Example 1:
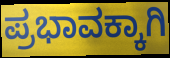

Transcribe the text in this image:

ಪ್ರಭಾವಕ್ಕಾಗಿ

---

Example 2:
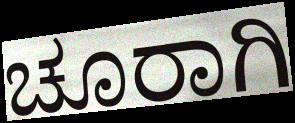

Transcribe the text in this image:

ಚೂರಾಗಿ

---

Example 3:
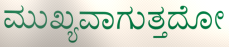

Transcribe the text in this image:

ಮುಖ್ಯವಾಗುತ್ತದೋ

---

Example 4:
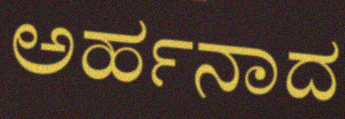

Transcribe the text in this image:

ಅರ್ಹನಾದ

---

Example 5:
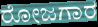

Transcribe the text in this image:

ರೋಜಗಾರ